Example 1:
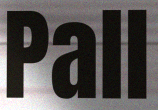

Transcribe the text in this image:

Pall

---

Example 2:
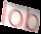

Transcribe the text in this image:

Iob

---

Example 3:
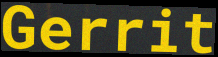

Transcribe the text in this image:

Gerrit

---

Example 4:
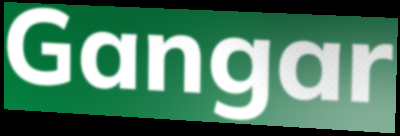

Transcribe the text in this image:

Gangar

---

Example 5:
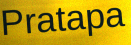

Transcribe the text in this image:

Pratapa